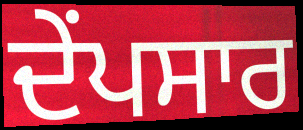
ਦੇਂਪਸਾਰ